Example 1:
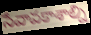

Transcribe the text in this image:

సేవావకాశాల్ని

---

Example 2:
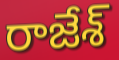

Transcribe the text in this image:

రాజేశ్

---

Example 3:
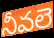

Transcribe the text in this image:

నీవలె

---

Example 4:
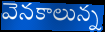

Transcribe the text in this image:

వెనకాలున్న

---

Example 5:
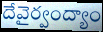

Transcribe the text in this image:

దేవైర్వంద్యాం